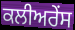
ਕਲੀਅਰੇਂਸ